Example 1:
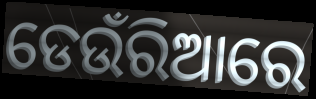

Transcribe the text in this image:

ଡେଉଁରିଆରେ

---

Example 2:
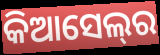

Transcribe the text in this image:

କିଆସେଲ୍‌ର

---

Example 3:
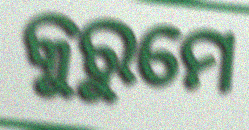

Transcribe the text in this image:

କୁରୁମେ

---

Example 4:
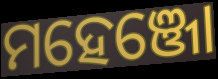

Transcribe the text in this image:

ମହେଞ୍ଜୋ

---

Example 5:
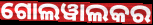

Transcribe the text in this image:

ଗୋଲୱାଲକର